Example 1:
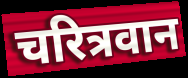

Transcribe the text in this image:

चरित्रवान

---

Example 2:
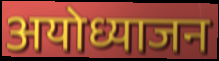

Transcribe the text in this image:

अयोध्याजन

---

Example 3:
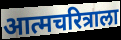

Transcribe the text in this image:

आत्मचरित्राला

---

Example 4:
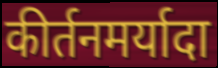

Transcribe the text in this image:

कीर्तनमर्यादा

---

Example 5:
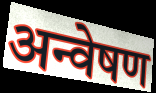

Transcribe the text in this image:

अन्वेषण